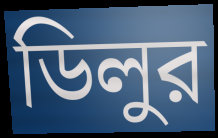
ডিলুর